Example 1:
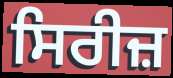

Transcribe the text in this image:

ਸਿਰੀਜ਼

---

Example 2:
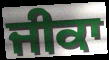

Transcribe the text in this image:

ਜੀਕਾ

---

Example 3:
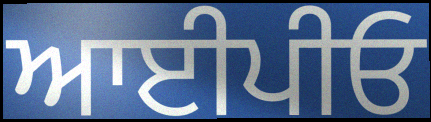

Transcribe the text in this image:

ਆਈਪੀਓ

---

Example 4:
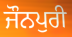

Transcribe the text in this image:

ਜੌਨਪੁਰੀ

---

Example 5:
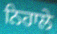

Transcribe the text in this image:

ਨਿਹਾਲੇ